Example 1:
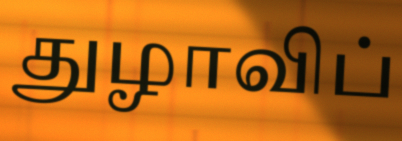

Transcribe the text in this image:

துழாவிப்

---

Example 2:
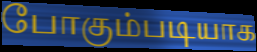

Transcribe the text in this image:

போகும்படியாக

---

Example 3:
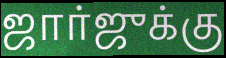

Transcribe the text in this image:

ஜார்ஜுக்கு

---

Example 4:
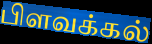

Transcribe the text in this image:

பிளவக்கல்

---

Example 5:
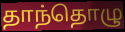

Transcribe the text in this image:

தாந்தொழு